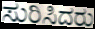
ಸುರಿಸಿದರು